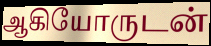
ஆகியோருடன்